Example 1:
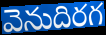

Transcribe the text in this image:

వెనుదిరగ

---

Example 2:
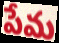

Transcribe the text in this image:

పేమ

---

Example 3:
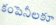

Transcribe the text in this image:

కంపెనీలకూ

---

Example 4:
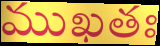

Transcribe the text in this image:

ముఖతః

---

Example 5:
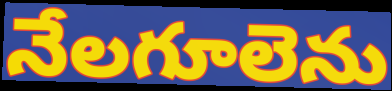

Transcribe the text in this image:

నేలగూలెను